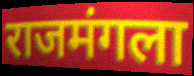
राजमंगला